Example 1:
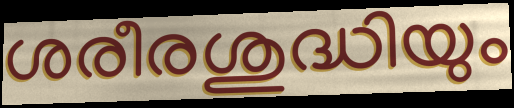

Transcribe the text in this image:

ശരീരശുദ്ധിയും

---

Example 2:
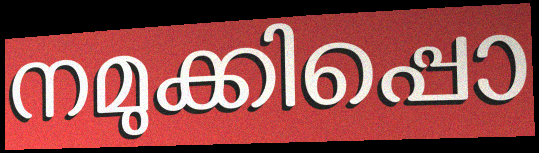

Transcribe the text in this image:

നമുക്കിപ്പൊ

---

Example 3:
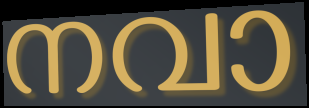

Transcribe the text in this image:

നവാ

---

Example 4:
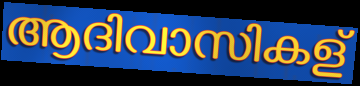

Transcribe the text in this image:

ആദിവാസികള്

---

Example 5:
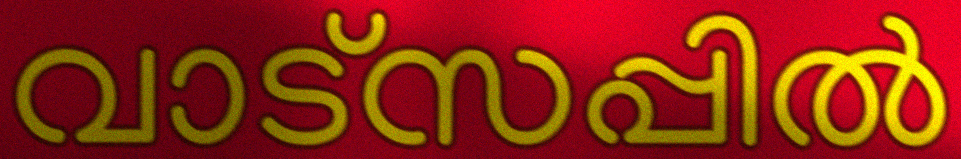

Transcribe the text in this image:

വാട്സപ്പിൽ